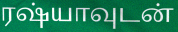
ரஷ்யாவுடன்